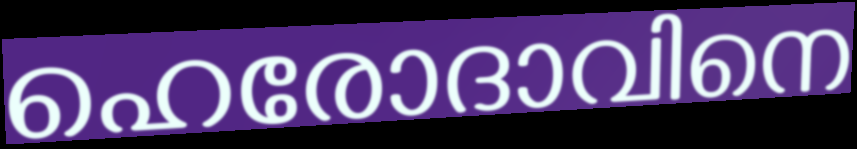
ഹെരോദാവിനെ